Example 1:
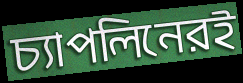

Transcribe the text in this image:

চ্যাপলিনেরই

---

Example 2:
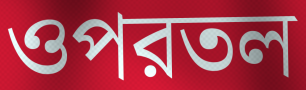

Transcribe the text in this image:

ওপরতল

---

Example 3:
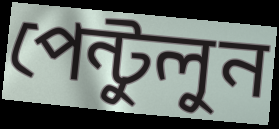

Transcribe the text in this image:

পেন্টুলুন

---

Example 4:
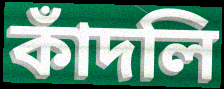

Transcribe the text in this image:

কাঁদলি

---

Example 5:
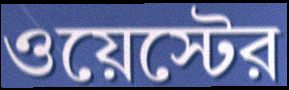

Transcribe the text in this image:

ওয়েস্টের